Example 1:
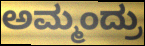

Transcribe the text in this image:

ಅಮ್ಮಂದ್ರು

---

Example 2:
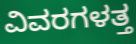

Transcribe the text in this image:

ವಿವರಗಳತ್ತ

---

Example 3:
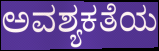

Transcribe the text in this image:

ಅವಶ್ಯಕತೆಯ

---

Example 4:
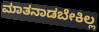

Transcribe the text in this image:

ಮಾತನಾಡಬೇಕಿಲ್ಲ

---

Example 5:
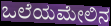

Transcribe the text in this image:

ಒಲೆಯಮೇಲಿನ